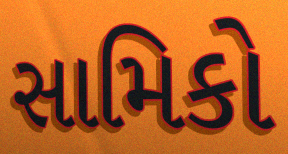
સામિકો